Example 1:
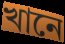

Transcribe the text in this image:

খানে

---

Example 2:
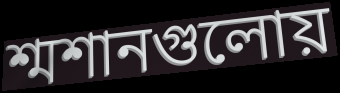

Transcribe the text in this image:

শ্মশানগুলোয়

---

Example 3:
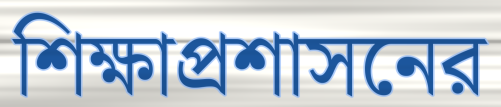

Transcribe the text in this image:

শিক্ষাপ্রশাসনের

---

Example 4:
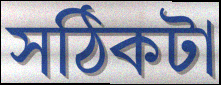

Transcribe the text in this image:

সঠিকটা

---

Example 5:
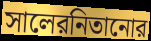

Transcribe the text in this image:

সালেরনিতানোর